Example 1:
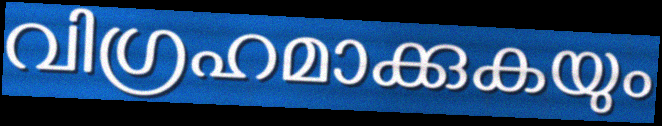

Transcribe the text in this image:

വിഗ്രഹമാക്കുകയും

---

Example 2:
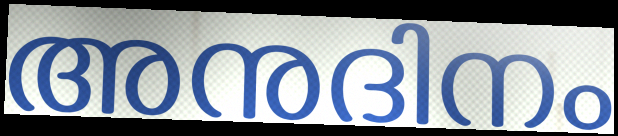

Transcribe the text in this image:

അനുദിനം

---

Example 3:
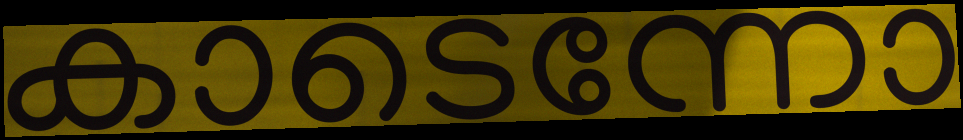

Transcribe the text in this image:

കാടെന്നോ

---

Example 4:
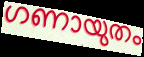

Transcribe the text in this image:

ഗണായുതം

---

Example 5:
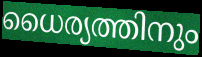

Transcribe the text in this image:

ധൈര്യത്തിനും